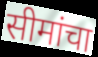
सीमांचा